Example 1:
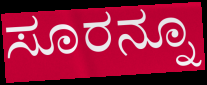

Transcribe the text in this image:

ಸೂರನ್ನೂ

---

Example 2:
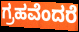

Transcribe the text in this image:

ಗ್ರಹವೆಂದರೆ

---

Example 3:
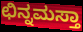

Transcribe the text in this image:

ಛಿನ್ನಮಸ್ತಾ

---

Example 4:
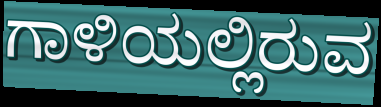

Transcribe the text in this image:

ಗಾಳಿಯಲ್ಲಿರುವ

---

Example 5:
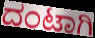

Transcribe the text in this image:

ದಂಟಾಗಿ